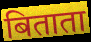
बिताता